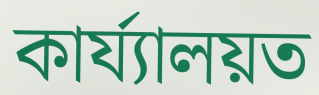
কাৰ্য্যালয়ত